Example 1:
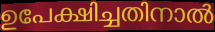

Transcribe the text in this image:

ഉപേക്ഷിച്ചതിനാൽ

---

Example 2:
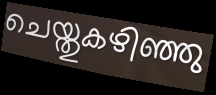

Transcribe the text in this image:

ചെയ്തുകഴിഞ്ഞു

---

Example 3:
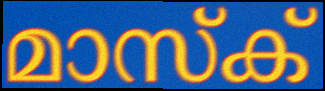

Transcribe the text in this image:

മാസ്ക്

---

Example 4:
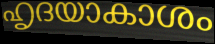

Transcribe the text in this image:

ഹൃദയാകാശം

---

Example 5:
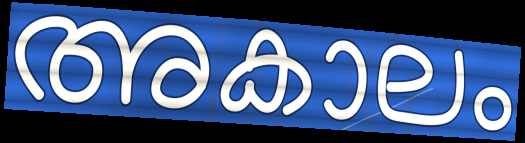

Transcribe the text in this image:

അകാലം